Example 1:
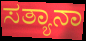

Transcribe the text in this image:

ಸತ್ಯಾನಾ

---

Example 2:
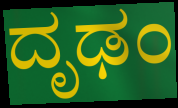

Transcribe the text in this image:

ದೃಢಂ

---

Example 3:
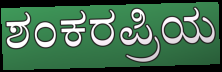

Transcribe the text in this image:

ಶಂಕರಪ್ರಿಯ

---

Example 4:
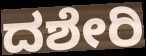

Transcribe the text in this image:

ದಶೇರಿ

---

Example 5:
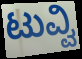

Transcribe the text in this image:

ಟುವ್ವಿ